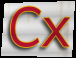
Cx